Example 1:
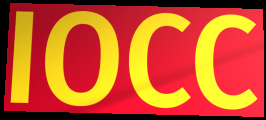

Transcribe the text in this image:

IOCC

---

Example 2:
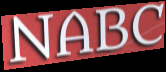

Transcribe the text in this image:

NABC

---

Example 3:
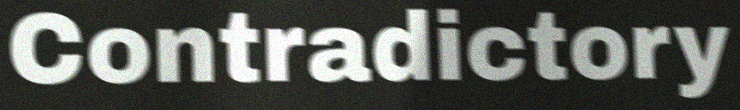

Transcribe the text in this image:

Contradictory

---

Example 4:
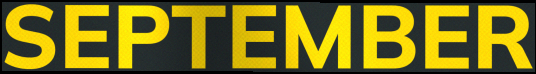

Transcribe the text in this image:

SEPTEMBER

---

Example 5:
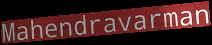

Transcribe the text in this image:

Mahendravarman